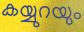
കയ്യുറയും